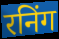
रनिंग